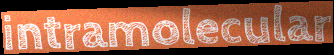
intramolecular